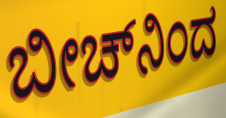
ಬೀಚ್‌ನಿಂದ